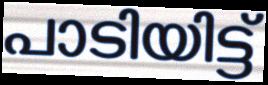
പാടിയിട്ട്